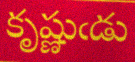
కృష్ణుఁడు